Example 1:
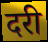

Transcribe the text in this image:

दरी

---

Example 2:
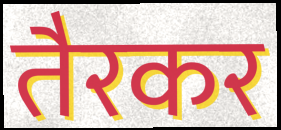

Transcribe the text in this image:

तैरकर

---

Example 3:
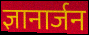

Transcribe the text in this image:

ज्ञानार्जन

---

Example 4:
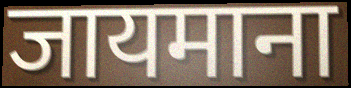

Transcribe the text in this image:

जायमाना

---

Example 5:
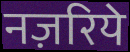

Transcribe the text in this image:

नज़रिये